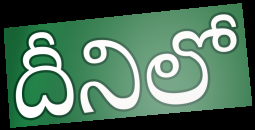
దీనిలో